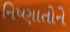
નિષ્ણાતોને